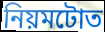
নিয়মটোত